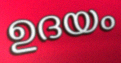
ഉദയം